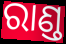
ରାଣ୍ଡ